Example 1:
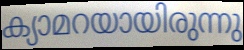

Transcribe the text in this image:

ക്യാമറയായിരുന്നു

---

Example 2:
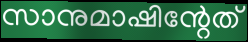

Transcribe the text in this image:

സാനുമാഷിന്റേത്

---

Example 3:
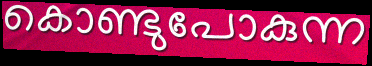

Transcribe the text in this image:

കൊണ്ടുപോകുന്ന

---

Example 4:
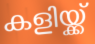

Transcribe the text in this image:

കളിയ്ക്ക്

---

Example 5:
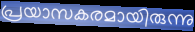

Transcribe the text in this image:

പ്രയാസകരമായിരുന്നു